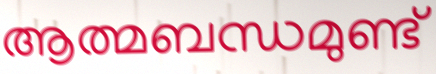
ആത്മബന്ധമുണ്ട്